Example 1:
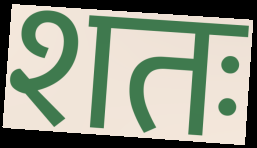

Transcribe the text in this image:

शतः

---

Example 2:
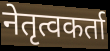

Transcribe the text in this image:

नेतृत्वकर्ता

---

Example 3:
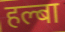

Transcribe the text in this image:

हल्बा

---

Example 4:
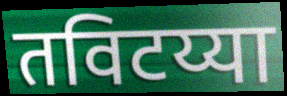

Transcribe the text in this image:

तविटय्या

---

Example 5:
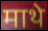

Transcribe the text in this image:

माथे